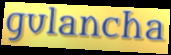
gulancha